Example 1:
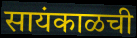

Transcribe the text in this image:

सायंकाळची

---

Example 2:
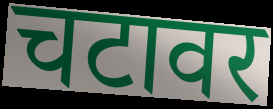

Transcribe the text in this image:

चटावर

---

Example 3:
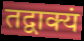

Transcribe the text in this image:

तद्वाक्यं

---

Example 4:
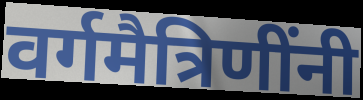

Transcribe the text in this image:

वर्गमैत्रिणींनी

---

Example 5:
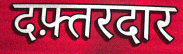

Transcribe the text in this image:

दफ़्तरदार